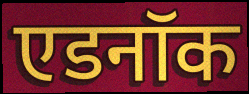
एडनॉक